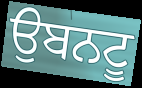
ਉਬਨਟੂ